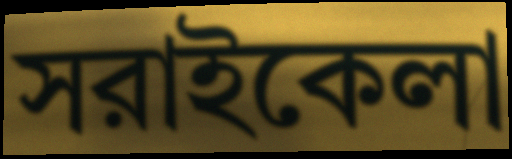
সরাইকেলা